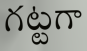
గట్టగా